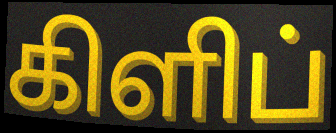
கிளிப்